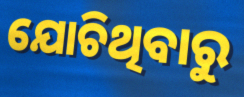
ଯୋଚିଥିବାରୁ